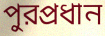
পুরপ্রধান